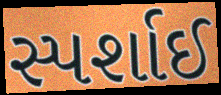
સ્પર્શાઈ